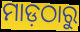
ମାଡ଼ଠାରୁ